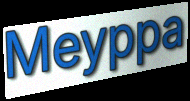
Meyppa